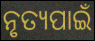
ନୃତ୍ୟପାଇଁ